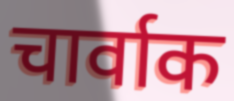
चार्वाक